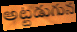
అట్టడుగున